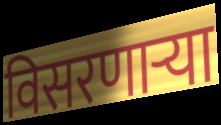
विसरणाऱ्या